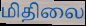
மிதிலை